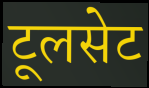
टूलसेट